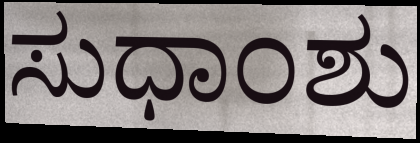
ಸುಧಾಂಶು